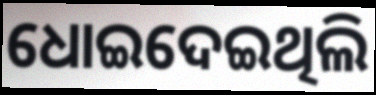
ଧୋଇଦେଇଥିଲି